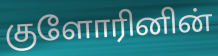
குளோரினின்